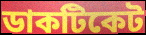
ডাকটিকেট